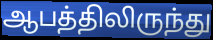
ஆபத்திலிருந்து